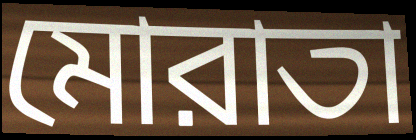
মোরাতা